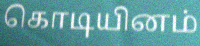
கொடியினம்